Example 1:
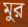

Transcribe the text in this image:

মুর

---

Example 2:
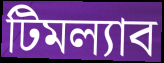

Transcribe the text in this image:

টিমল্যাব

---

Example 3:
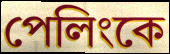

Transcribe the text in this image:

পেলিংকে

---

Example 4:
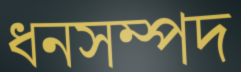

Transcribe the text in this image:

ধনসম্পদ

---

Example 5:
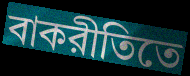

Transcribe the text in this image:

বাকরীতিতে